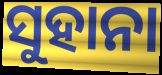
ସୁହାନା